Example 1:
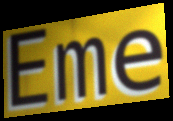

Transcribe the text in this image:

Eme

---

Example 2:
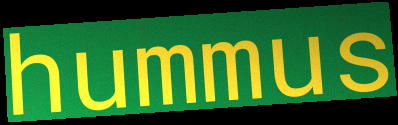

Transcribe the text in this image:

hummus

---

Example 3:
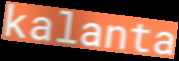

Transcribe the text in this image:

kalanta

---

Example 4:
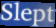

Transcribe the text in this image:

Slept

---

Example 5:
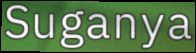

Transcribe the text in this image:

Suganya